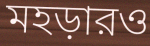
মহড়ারও